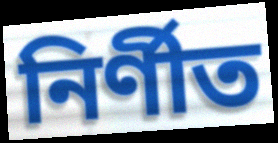
নির্ণীত